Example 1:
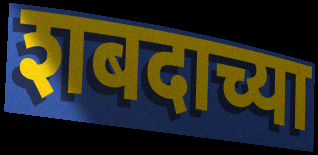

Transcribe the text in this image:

शबदाच्या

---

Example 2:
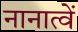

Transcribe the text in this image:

नानात्वें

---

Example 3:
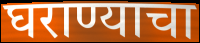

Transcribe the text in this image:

घराण्याचा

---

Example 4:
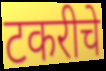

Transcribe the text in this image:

टकरीचे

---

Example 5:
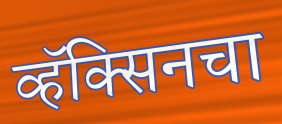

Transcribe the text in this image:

व्हॅक्सिनचा